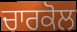
ਚਾਰਕੋਲ